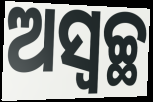
ଅସ୍ଵଚ୍ଛ